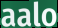
aalo